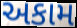
અકામ